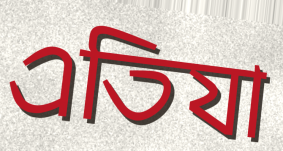
এতিযা